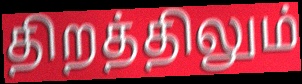
திறத்திலும்